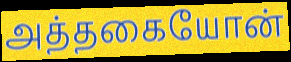
அத்தகையோன்